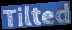
Tilted